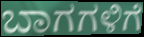
ಬಾಗಗಳಿಗೆ